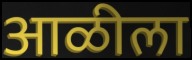
आळीला